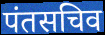
पंतसचिव